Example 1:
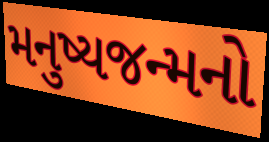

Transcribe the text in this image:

મનુષ્યજન્મનો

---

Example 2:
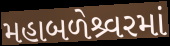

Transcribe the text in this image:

મહાબળેશ્ર્વરમાં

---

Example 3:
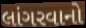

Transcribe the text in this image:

લાંગરવાનો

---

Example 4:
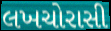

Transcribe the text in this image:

લખચોરાસી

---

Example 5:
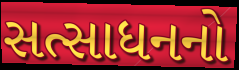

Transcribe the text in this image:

સત્સાધનનો